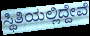
ಸ್ಥಿತಿಯಲ್ಲಿದ್ದೇವೆ